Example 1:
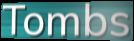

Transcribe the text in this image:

Tombs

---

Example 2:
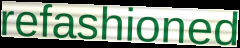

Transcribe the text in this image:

refashioned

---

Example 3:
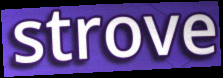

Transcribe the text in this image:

strove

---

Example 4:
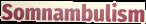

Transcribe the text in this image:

Somnambulism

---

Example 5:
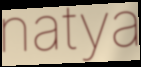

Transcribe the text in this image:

natya